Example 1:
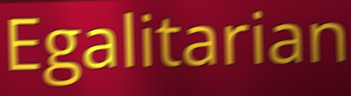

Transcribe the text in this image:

Egalitarian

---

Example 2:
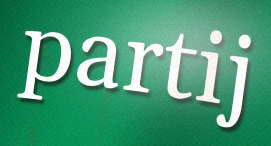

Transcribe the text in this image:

partij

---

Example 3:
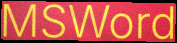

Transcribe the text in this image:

MSWord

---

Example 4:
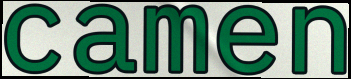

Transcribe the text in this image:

camen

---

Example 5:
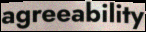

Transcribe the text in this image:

agreeability